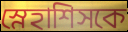
স্নেহাশিসকে